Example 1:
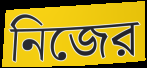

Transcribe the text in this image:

নিজের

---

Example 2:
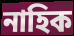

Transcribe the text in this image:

নাহিক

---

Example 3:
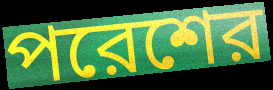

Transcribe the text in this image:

পরেশের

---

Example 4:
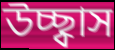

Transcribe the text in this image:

উচ্ছ্বাস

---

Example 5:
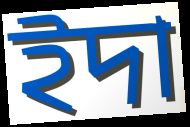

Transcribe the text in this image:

ইদা